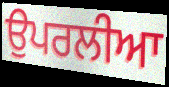
ਉਪਰਲੀਆ